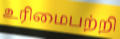
உரிமைபற்றி